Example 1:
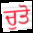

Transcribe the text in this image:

ਚੁਤੋ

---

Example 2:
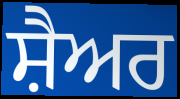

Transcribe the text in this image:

ਸ਼ੈਅਰ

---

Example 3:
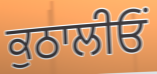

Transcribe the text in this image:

ਕੁਠਾਲੀਓਂ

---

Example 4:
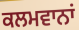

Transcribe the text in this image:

ਕਲਮਵਾਨਾਂ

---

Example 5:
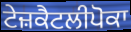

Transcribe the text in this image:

ਟੇਜ਼ਕੈਟਲੀਪੋਕਾ